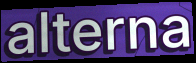
alterna